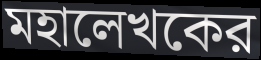
মহালেখকের